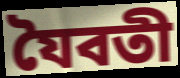
যৈবতী